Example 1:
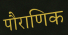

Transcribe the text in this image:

पौराणिक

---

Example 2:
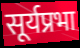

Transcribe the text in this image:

सूर्यप्रभा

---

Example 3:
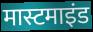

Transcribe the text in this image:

मास्टमाइंड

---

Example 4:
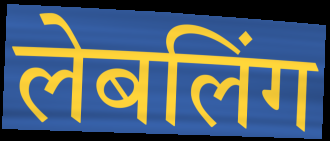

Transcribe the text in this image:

लेबलिंग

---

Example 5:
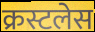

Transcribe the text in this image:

क्रस्टलेस